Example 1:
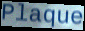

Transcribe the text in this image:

Plaque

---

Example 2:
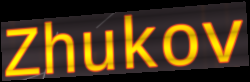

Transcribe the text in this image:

Zhukov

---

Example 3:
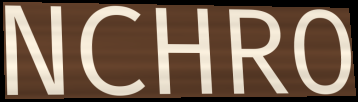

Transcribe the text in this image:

NCHRO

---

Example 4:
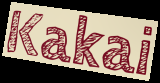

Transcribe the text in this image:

Kakai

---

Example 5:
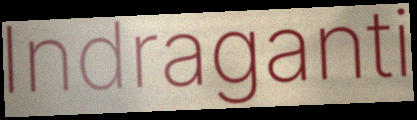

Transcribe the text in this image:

Indraganti